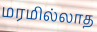
மரமில்லாத